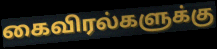
கைவிரல்களுக்கு